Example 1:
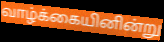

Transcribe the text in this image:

வாழ்க்கையினின்று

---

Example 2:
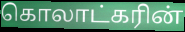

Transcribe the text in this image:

கொலாட்கரின்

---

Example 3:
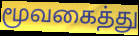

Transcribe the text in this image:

மூவகைத்து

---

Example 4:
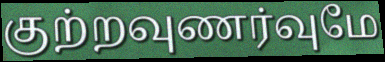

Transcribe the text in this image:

குற்றவுணர்வுமே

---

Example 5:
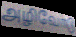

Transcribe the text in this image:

அழிவோடு